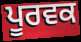
ਪੂਰਵਕ